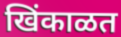
खिंकाळत